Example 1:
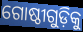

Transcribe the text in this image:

ଗୋଷ୍ଠୀଗୁଡ଼ିକୁ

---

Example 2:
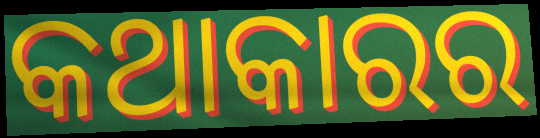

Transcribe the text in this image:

କଥାକାରର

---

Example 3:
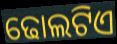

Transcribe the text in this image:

ଢୋଲଟିଏ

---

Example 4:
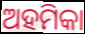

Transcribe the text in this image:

ଅହମିକା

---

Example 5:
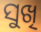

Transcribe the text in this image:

ସୁଖି